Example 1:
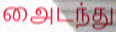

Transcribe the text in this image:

அைடந்து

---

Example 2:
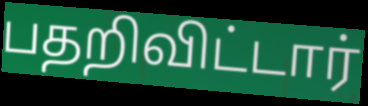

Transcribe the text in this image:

பதறிவிட்டார்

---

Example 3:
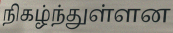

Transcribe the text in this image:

நிகழ்ந்துள்ளன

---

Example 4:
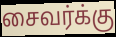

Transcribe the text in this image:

சைவர்க்கு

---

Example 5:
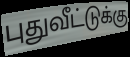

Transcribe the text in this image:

புதுவீட்டுக்கு